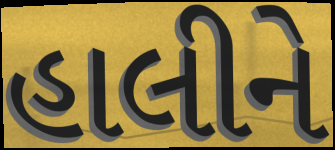
હાલીને